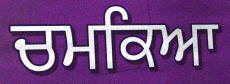
ਚਮਕਿਆ